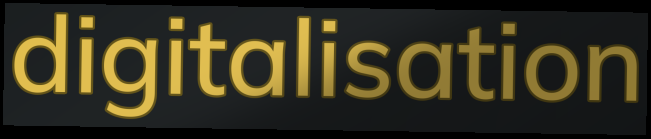
digitalisation